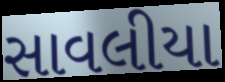
સાવલીયા